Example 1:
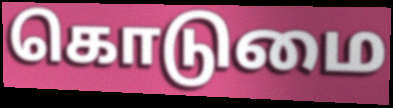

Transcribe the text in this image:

கொடுமை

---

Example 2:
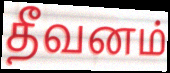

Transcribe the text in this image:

தீவனம்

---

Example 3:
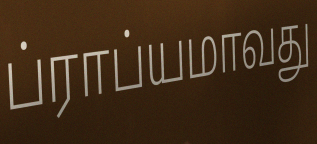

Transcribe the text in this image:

ப்ராப்யமாவது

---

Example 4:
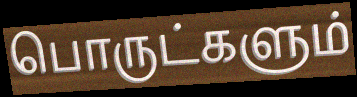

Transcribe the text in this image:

பொருட்களும்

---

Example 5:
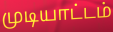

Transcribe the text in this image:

முடியாட்டம்